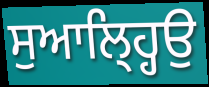
ਸੁਆਲ੍ਹ੍ਹਿਉ